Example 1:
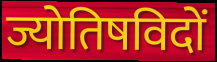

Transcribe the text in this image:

ज्योतिषविदों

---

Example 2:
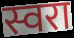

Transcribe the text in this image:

स्‍वरा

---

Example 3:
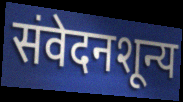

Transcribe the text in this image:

संवेदनशून्य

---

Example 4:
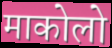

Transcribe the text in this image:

माकोलो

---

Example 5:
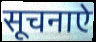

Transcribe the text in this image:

सूचनाऐ